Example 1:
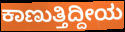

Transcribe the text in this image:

ಕಾಣುತ್ತಿದ್ದೀಯ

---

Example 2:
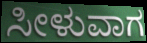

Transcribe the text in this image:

ಸೀಳುವಾಗ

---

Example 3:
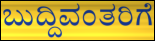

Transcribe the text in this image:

ಬುದ್ದಿವಂತರಿಗೆ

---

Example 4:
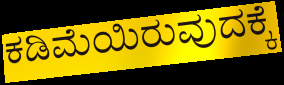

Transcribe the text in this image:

ಕಡಿಮೆಯಿರುವುದಕ್ಕೆ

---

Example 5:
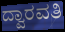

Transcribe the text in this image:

ದ್ವಾರವತಿ